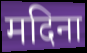
मदिना